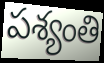
పశ్యంతి